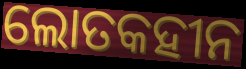
ଲୋତକହୀନ